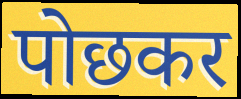
पोछकर